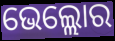
ଭେଲ୍ଲୋର